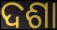
ଦଶା